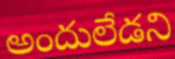
అందులేడని